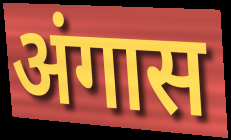
अंगास